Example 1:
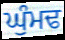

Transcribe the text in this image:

ਘੁੰਮਢ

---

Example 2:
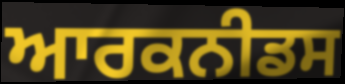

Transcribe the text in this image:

ਆਰਕਨੀਡਸ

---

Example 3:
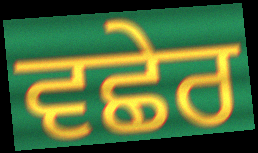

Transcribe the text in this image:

ਵਛੇਰ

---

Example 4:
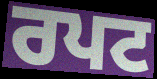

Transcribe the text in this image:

ਰਪਟ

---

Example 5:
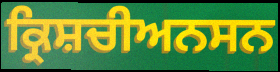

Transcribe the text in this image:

ਕ੍ਰਿਸ਼ਚੀਅਨਸਨ